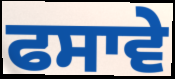
ਫਸਾਵੇ